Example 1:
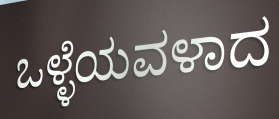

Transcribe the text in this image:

ಒಳ್ಳೆಯವಳಾದ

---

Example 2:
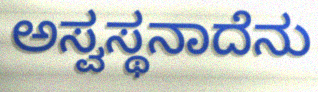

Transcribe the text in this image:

ಅಸ್ವಸ್ಥನಾದೆನು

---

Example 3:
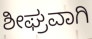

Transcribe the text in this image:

ಶೀಘ್ರವಾಗಿ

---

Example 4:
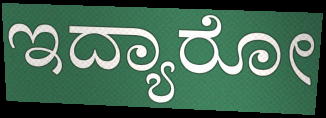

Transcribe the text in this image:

ಇದ್ಯಾರೋ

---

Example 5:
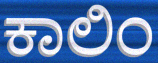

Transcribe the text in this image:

ಕಾಲಿಂ